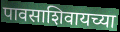
पावसाशिवायच्या